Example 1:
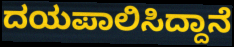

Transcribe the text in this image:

ದಯಪಾಲಿಸಿದ್ದಾನೆ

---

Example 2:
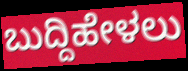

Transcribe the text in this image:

ಬುದ್ದಿಹೇಳಲು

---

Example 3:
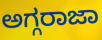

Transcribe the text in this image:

ಅಗ್ಗರಾಜಾ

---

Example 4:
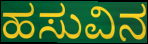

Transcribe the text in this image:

ಹಸುವಿನ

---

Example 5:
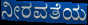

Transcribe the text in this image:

ನೀರವತೆಯ